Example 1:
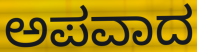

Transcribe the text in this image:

ಅಪವಾದ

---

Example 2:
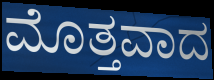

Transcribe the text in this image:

ಮೊತ್ತವಾದ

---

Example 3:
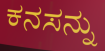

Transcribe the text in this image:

ಕನಸನ್ನು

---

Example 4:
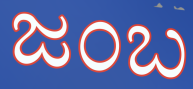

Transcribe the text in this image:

ಜಂಬ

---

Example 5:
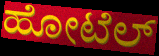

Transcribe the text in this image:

ಹೋಟೆಲ್